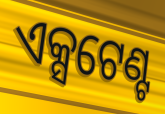
ଏକ୍ସଟେଣ୍ଟ